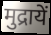
मुद्रायें